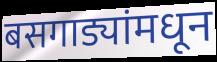
बसगाड्यांमधून